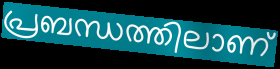
പ്രബന്ധത്തിലാണ്